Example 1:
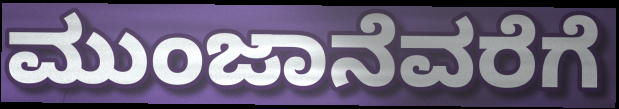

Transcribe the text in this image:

ಮುಂಜಾನೆವರೆಗೆ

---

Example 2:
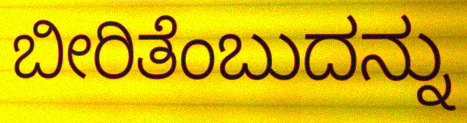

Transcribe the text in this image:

ಬೀರಿತೆಂಬುದನ್ನು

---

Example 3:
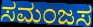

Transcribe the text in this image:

ಸಮಂಜಸ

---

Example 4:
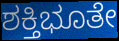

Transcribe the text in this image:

ಶಕ್ತಿಭೂತೇ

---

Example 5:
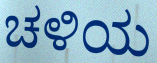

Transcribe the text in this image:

ಚಳಿಯ